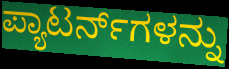
ಪ್ಯಾಟರ್ನ್‌ಗಳನ್ನು